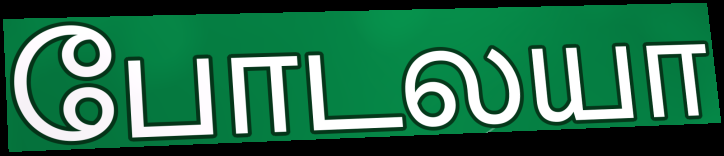
போடலயா